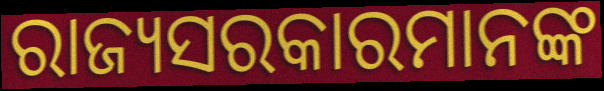
ରାଜ୍ୟସରକାରମାନଙ୍କ